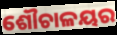
ଶୌଚାଳୟର